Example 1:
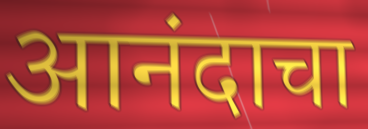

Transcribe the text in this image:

आनंदाचा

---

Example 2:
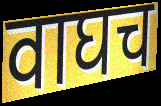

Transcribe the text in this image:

वाघच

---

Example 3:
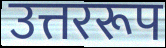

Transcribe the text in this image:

उत्तररूप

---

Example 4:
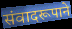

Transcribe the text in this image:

संवादरूपाने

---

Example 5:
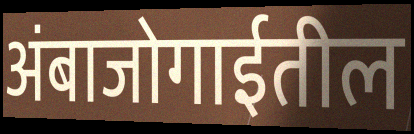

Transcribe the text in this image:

अंबाजोगाईतील